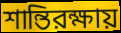
শান্তিরক্ষায়